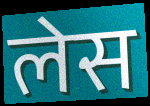
लेस